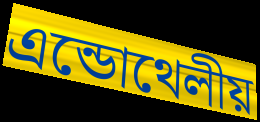
এন্ডোথেলীয়